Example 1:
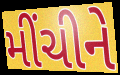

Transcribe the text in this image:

મીંચીને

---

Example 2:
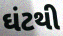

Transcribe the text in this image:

ઘંટથી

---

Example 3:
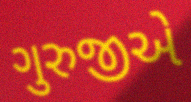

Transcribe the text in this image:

ગુરુજીએ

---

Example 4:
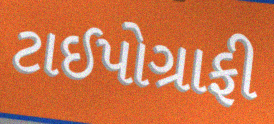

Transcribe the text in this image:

ટાઈપોગ્રાફી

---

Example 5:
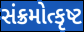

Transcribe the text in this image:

સંક્રમોત્કૃષ્ટ